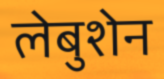
लेबुशेन